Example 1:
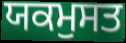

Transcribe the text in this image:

ਯਕਮੁਸਤ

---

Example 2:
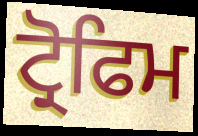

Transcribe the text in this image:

ਟ੍ਰੋਫਿਮ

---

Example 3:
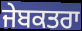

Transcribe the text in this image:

ਜੇਬਕਤਰਾ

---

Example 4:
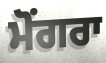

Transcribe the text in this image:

ਮੋਂਗਰਾ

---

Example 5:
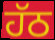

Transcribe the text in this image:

ਹੱਠ